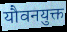
यौवनयुक्त